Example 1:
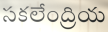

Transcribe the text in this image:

సకలేంద్రియ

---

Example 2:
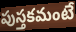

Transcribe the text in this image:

పుస్తకమంటే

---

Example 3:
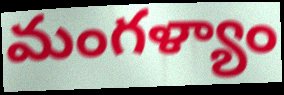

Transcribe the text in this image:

మంగళ్యాం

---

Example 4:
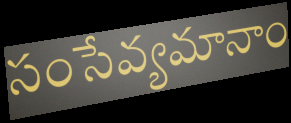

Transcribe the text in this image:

సంసేవ్యమానాం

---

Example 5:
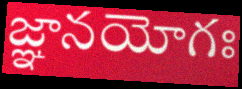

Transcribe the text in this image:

జ్ఞానయోగః